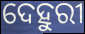
ଦେହୁରୀ